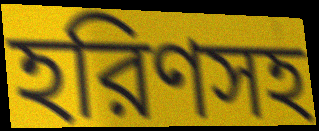
হরিণসহ